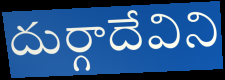
దుర్గాదేవిని